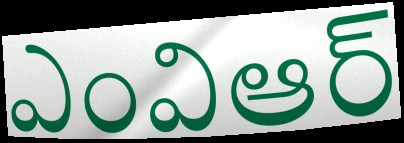
ఎంవిఆర్